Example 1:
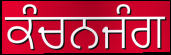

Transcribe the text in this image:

ਕੰਚਨਜੰਗ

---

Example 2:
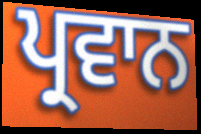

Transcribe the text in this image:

ਪ੍ਰਵਾਨ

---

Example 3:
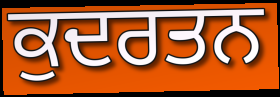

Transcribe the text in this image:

ਕੁਦਰਤਨ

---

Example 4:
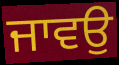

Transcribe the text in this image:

ਜਾਵਉ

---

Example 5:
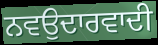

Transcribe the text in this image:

ਨਵਉਦਾਰਵਾਦੀ